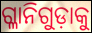
ଗ୍ଳାନିଗୁଡ଼ାକୁ